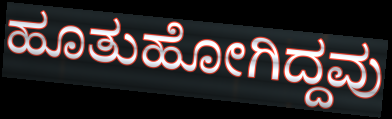
ಹೂತುಹೋಗಿದ್ದವು